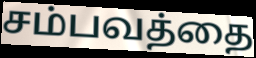
சம்பவத்தை